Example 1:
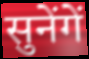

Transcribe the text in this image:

सुनेंगें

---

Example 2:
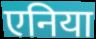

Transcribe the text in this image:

एनिया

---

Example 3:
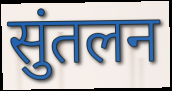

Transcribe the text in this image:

सुंतलन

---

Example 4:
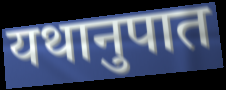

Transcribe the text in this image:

यथानुपात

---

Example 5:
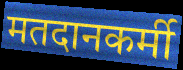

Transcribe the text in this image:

मतदानकर्मी